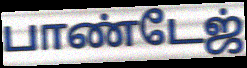
பாண்டேஜ்